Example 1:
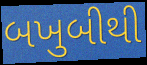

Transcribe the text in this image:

બખુબીથી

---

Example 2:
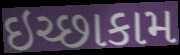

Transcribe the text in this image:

ઇચ્છાકામ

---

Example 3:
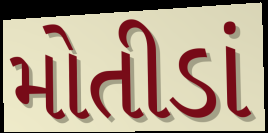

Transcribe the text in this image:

મોતીડાં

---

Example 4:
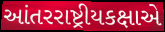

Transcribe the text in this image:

આંતરરાષ્ટ્રીયકક્ષાએ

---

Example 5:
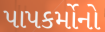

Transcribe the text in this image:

પાપકર્મોનો